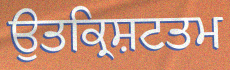
ਉਤਕ੍ਰਿਸ਼ਟਤਮ